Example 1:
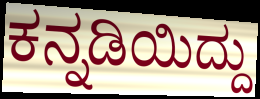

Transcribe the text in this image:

ಕನ್ನಡಿಯಿದ್ದು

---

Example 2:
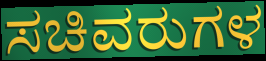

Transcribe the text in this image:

ಸಚಿವರುಗಳ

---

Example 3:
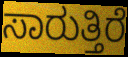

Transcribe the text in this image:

ಸಾರುತ್ತಿರೆ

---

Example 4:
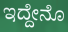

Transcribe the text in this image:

ಇದ್ದೇನೊ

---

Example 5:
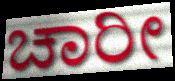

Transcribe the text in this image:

ಚಾರೀ